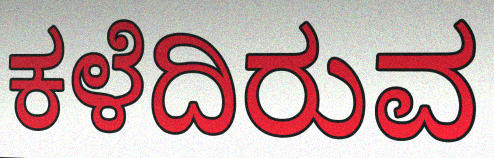
ಕಳೆದಿರುವ